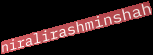
niralirashminshah